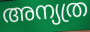
അന്യത്ര